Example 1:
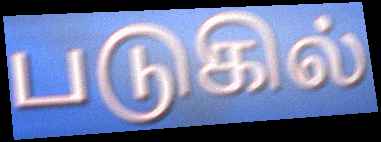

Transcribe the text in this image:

படுகில்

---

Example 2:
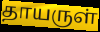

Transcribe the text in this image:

தாயருள்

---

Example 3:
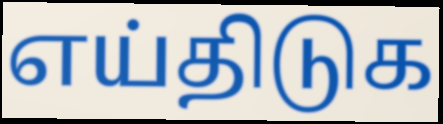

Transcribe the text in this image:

எய்திடுக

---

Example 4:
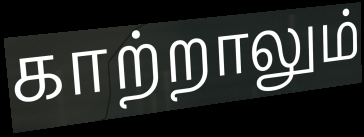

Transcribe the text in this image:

காற்றாலும்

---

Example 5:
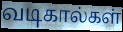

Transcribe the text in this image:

வடிகால்கள்